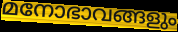
മനോഭാവങ്ങളും